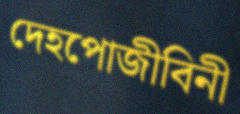
দেহপোজীবিনী